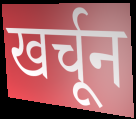
खर्चून